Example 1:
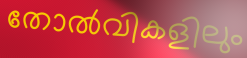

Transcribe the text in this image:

തോൽവികളിലും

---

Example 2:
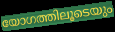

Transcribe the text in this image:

യോഗത്തിലൂടെയും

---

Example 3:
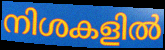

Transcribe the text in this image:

നിശകളിൽ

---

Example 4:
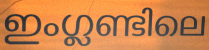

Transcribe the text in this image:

ഇംഗ്ലണ്ടിലെ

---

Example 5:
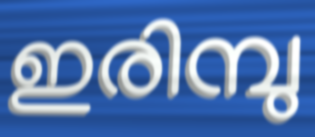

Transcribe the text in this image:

ഇരിമ്പു